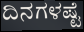
ದಿನಗಳಷ್ಟೆ